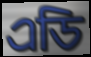
এডি